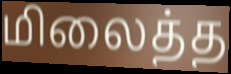
மிலைத்த